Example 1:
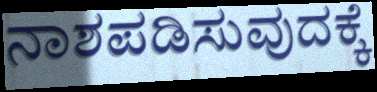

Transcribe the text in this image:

ನಾಶಪಡಿಸುವುದಕ್ಕೆ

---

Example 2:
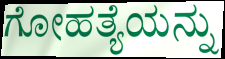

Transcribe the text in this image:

ಗೋಹತ್ಯೆಯನ್ನು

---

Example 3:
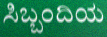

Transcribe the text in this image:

ಸಿಬ್ಬಂದಿಯ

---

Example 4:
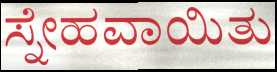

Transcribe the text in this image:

ಸ್ನೇಹವಾಯಿತು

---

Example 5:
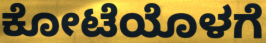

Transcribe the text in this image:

ಕೋಟೆಯೊಳಗೆ